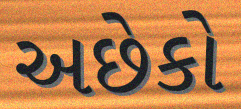
અછેકો